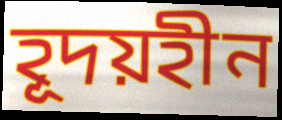
হূদয়হীন